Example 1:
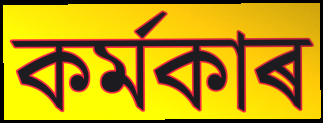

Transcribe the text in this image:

কৰ্মকাৰ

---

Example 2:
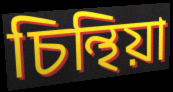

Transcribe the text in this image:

চিন্থিয়া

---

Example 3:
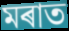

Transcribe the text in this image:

মৰাত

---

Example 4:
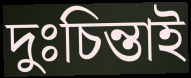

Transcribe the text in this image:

দুঃচিন্তাই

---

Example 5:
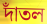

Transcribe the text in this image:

দাঁতল